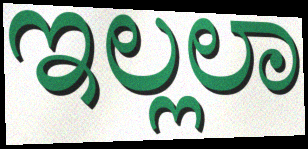
ಇಲ್ಲಲಾ